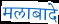
मलाबादे